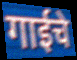
गाईचे